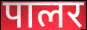
पालर